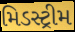
મિડસ્ટ્રીમ